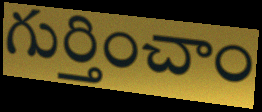
గుర్తించాం